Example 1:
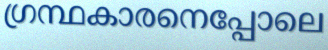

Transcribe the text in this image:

ഗ്രന്ഥകാരനെപ്പോലെ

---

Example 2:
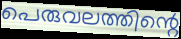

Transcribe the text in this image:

പെരുവലത്തിന്റെ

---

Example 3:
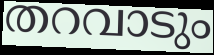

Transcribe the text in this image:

തറവാടും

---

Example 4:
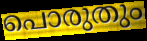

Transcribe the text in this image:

പൊരുതും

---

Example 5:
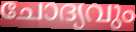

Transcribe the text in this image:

ചോദ്യവും